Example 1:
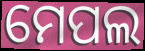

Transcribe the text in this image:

ମେପଲ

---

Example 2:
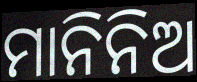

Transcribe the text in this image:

ମାନିନିଅ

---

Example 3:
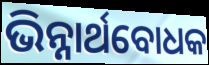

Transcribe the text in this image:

ଭିନ୍ନାର୍ଥବୋଧକ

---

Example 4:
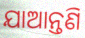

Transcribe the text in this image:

ଯାଆନ୍ତଣି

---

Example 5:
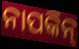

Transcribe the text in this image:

ନାପକିନ୍